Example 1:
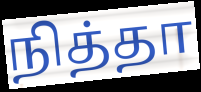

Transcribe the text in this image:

நித்தா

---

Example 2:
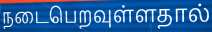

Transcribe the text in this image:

நடைபெறவுள்ளதால்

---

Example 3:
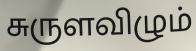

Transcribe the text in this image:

சுருளவிழும்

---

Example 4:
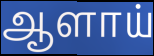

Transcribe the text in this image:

ஆளாய்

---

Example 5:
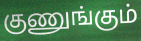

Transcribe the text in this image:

குணுங்கும்